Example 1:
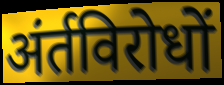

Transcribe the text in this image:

अंर्तविरोधों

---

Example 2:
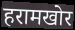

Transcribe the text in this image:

हरामखोर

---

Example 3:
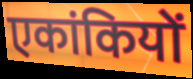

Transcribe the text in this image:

एकांकियों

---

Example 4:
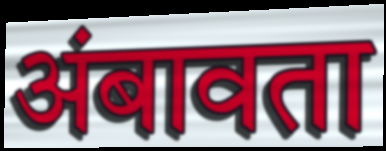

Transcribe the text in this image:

अंबावता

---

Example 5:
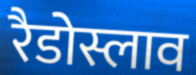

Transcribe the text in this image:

रैडोस्लाव